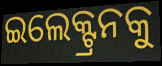
ଇଲେକ୍ଟ୍ରନକୁ